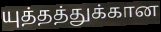
யுத்தத்துக்கான